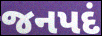
જનપદં